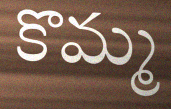
కొమ్మ